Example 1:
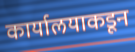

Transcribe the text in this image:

कार्यालयाकडून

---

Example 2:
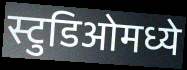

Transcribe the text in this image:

स्टुडिओमध्ये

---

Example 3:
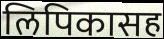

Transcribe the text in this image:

लिपिकासह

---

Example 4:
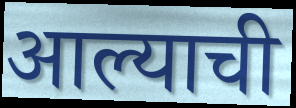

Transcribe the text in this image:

आल्याची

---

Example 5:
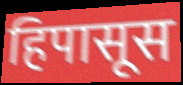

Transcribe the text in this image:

हिपासूस